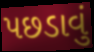
પછડાવું